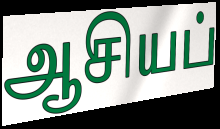
ஆசியப்